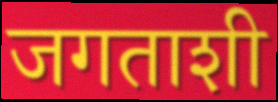
जगताशी